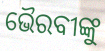
ଭୈରବୀଙ୍କୁ